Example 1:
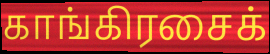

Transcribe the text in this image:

காங்கிரசைக்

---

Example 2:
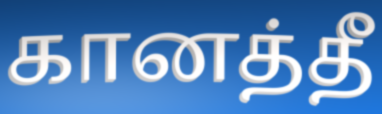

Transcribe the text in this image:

கானத்தீ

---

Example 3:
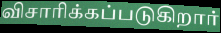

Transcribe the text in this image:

விசாரிக்கப்படுகிறார்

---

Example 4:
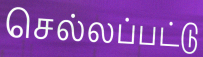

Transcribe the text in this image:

செல்லப்பட்டு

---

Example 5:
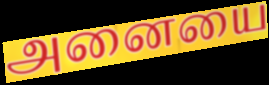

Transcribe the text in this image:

அனையை